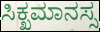
ಸಿಕ್ಖಮಾನಸ್ಸ